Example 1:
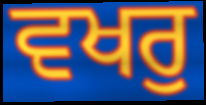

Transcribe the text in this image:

ਵਖਰੁ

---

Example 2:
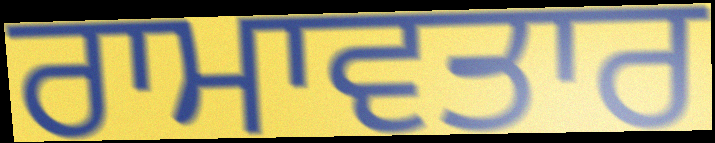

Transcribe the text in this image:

ਰਾਮਾਵਤਾਰ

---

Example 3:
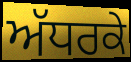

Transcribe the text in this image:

ਅੱਧਰਕੇ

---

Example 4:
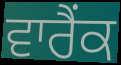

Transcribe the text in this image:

ਵਾਰੈਂਕ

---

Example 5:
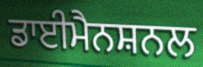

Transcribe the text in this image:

ਡਾਈਮੈਨਸ਼ਨਲ